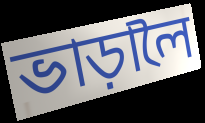
ভাড়ালৈ